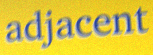
adjacent